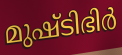
മുഷ്ടിഭിർ